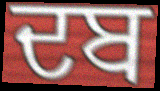
ਦਬ